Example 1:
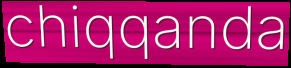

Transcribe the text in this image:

chiqqanda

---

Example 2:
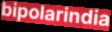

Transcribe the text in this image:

bipolarindia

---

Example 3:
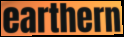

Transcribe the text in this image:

earthern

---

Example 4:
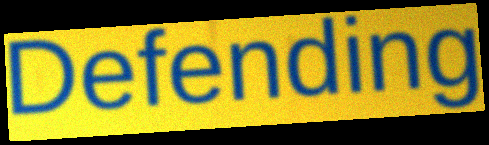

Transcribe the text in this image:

Defending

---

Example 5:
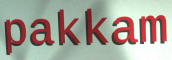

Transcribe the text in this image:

pakkam